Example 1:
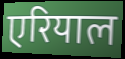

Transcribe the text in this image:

एरियाल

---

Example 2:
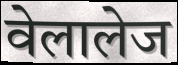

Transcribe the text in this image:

वेलालेज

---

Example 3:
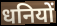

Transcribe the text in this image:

धनियों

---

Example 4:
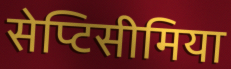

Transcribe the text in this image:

सेप्टिसीमिया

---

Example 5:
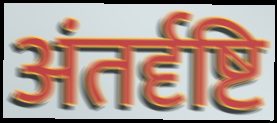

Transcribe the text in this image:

अंतर्दृष्टि